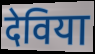
देविया